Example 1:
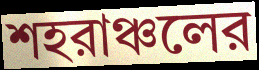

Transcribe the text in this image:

শহরাঞ্চলের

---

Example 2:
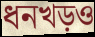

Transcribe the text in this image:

ধনখড়ও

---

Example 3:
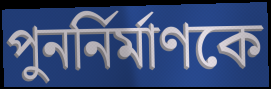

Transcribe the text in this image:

পুনর্নির্মাণকে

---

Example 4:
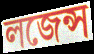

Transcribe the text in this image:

লজেন্স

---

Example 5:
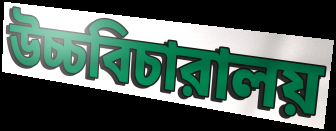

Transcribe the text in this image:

উচ্চবিচারালয়